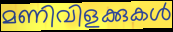
മണിവിളക്കുകൾ